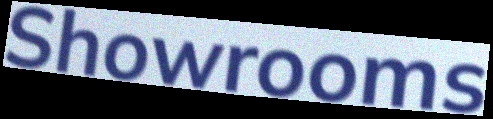
Showrooms